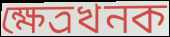
ক্ষেত্ৰখনক